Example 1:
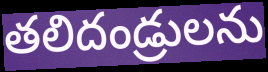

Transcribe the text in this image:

తలిదండ్రులను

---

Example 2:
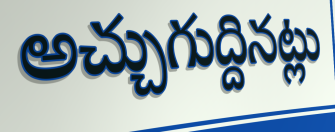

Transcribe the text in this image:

అచ్చుగుద్దినట్లు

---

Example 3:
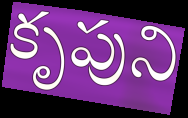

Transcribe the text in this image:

కృపుని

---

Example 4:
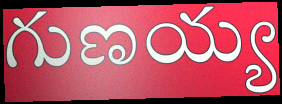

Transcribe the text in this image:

గుణయ్య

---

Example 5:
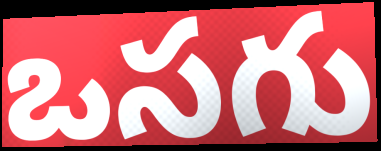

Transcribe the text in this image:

ఒసగు